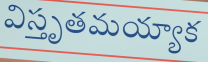
విస్తృతమయ్యాక